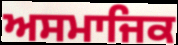
ਅਸਮਾਜਿਕ